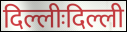
दिल्लीःदिल्ली